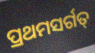
ପ୍ରଥମସର୍ଗତ୍